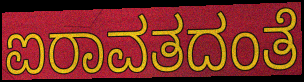
ಐರಾವತದಂತೆ